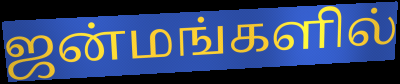
ஜன்மங்களில்